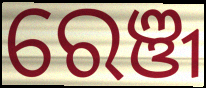
ରେଞ୍ଜ